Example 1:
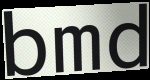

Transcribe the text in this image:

bmd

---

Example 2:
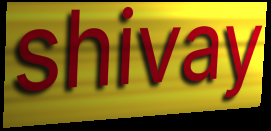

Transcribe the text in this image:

shivay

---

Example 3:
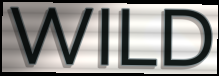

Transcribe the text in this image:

WILD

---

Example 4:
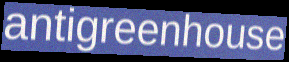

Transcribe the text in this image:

antigreenhouse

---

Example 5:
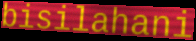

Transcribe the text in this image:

bisilahani